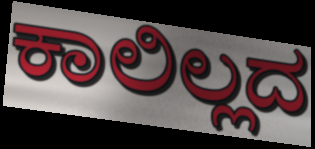
ಕಾಲಿಲ್ಲದ